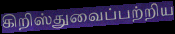
கிறிஸ்துவைப்பற்றிய